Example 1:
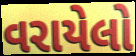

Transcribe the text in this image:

વરાયેલો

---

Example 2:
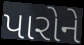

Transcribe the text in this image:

પારોને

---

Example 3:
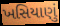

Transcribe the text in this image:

ખસિયાણું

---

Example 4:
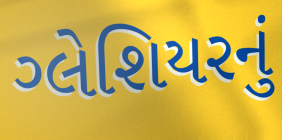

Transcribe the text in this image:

ગ્લેશિયરનું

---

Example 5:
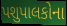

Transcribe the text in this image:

પશુપાલકોના